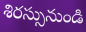
శిరస్సునుండి